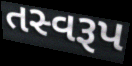
તસ્વરૂપ